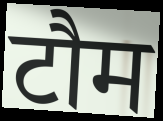
टौम